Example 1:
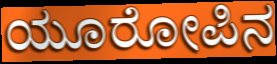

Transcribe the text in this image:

ಯೂರೋಪಿನ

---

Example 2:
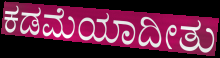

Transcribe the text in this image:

ಕಡಮೆಯಾದೀತು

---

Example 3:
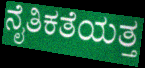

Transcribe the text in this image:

ನೈತಿಕತೆಯತ್ತ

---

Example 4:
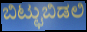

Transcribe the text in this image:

ಬಿಟ್ಟುಬಿಡಲಿ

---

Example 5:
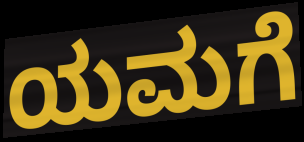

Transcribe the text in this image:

ಯಮಗೆ